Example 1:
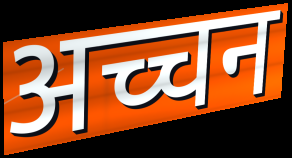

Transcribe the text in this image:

अच्चन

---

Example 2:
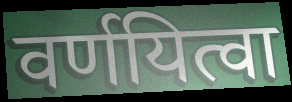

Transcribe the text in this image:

वर्णयित्वा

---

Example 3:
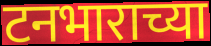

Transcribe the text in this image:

टनभाराच्या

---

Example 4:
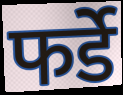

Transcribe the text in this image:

फर्डे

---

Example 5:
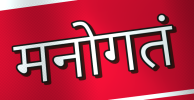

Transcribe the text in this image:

मनोगतं